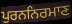
ਪੁਰਨਨਿਰਮਾਣ